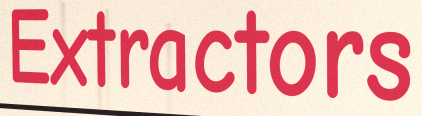
Extractors